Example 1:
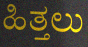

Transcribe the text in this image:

ಹಿತ್ತಲು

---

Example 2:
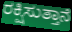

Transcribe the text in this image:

ರಕ್ಷಿಸುತ್ತಾನೆ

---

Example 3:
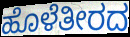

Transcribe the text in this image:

ಹೊಳೆತೀರದ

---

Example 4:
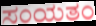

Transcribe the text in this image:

ಸಂಯತಂ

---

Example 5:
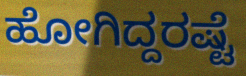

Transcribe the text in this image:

ಹೋಗಿದ್ದರಷ್ಟೆ